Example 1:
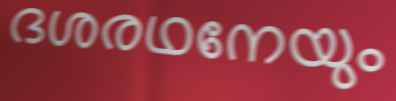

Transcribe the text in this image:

ദശരഥനേയും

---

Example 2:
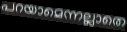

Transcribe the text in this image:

പറയാമെന്നല്ലാതെ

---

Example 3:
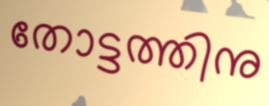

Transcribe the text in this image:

തോട്ടത്തിനു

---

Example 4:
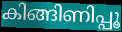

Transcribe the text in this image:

കിങ്ങിണിപ്പൂ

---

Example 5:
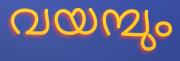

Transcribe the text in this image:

വയമ്പും